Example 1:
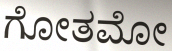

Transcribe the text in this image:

ಗೋತಮೋ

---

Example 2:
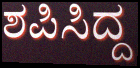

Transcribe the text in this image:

ಶಪಿಸಿದ್ದ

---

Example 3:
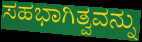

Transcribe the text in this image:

ಸಹಭಾಗಿತ್ವವನ್ನು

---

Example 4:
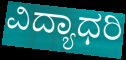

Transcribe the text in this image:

ವಿದ್ಯಾಧರಿ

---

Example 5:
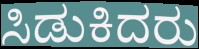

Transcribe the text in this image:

ಸಿಡುಕಿದರು